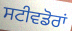
ਸਟੀਵਡੋਰਾਂ